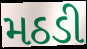
મઠડી